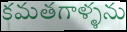
కమతగాళ్ళను